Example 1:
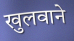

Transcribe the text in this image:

खुलवाने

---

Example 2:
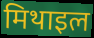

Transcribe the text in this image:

मिथाइल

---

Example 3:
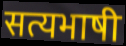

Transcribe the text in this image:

सत्यभाषी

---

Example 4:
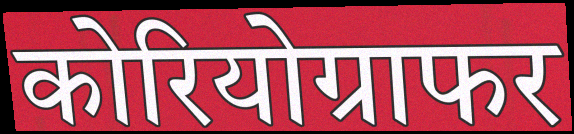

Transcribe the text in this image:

कोरियोग्राफर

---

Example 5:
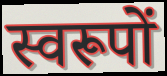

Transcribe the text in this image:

स्वरूपों